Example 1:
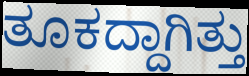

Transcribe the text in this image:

ತೂಕದ್ದಾಗಿತ್ತು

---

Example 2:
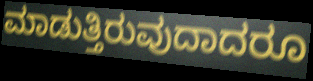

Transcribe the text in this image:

ಮಾಡುತ್ತಿರುವುದಾದರೂ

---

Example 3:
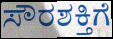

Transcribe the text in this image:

ಸೌರಶಕ್ತಿಗೆ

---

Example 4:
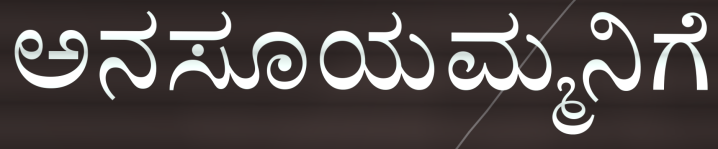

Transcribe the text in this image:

ಅನಸೂಯಮ್ಮನಿಗೆ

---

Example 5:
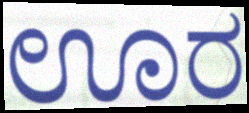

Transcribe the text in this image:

ಊರ